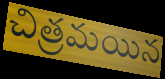
చిత్రమయిన